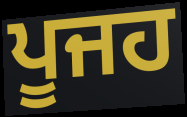
ਪੂਜਹ